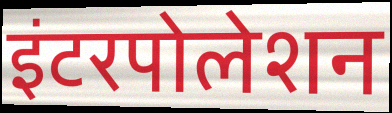
इंटरपोलेशन